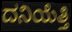
ದನಿಯೆತ್ತಿ